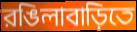
রঙিলাবাড়িতে